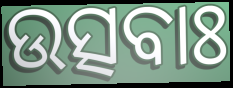
ଉତ୍ସବାଃ